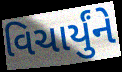
વિચાર્યુંને